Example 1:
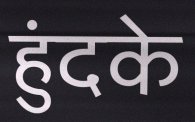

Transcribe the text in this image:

हुंदके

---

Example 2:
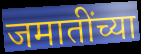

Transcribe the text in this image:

जमातींच्या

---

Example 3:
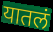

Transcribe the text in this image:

यातलं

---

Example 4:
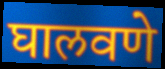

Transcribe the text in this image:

घालवणे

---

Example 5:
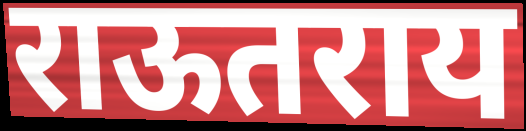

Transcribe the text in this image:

राऊतराय